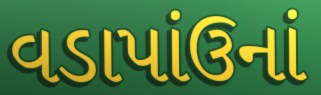
વડાપાંઉનાં